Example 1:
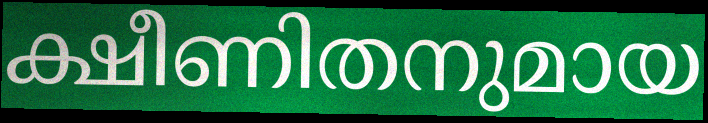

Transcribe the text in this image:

ക്ഷീണിതനുമായ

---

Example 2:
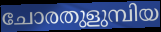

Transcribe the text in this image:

ചോരതുളുമ്പിയ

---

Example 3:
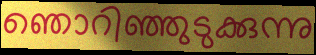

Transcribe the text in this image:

ഞൊറിഞ്ഞുടുക്കുന്നു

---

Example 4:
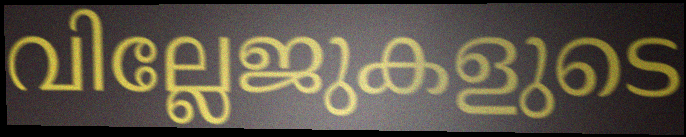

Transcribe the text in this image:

വില്ലേജുകളുടെ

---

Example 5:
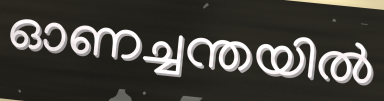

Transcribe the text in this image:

ഓണച്ചന്തയിൽ